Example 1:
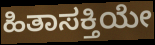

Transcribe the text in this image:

ಹಿತಾಸಕ್ತಿಯೇ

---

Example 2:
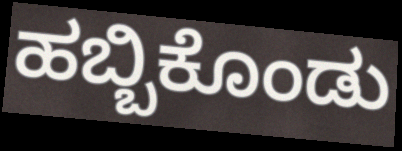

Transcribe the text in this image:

ಹಬ್ಬಿಕೊಂಡು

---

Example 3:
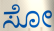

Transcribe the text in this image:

ಸೋ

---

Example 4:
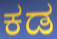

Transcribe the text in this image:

ಕಡ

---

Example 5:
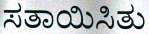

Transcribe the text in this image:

ಸತಾಯಿಸಿತು